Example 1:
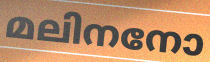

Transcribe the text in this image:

മലിനനോ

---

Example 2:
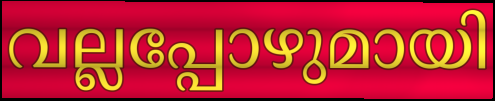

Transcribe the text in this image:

വല്ലപ്പോഴുമായി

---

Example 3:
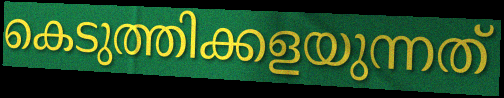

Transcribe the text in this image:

കെടുത്തിക്കളയുന്നത്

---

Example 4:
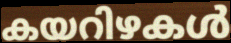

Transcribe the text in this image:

കയറിഴകൾ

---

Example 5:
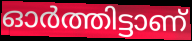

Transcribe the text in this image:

ഓർത്തിട്ടാണ്